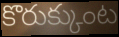
కొరుక్కుంట